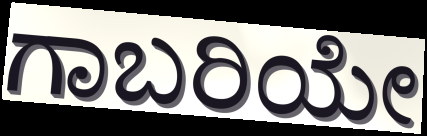
ಗಾಬರಿಯೇ